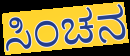
ಸಿಂಚನ